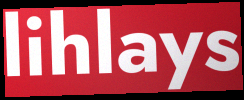
lihlays